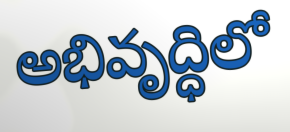
అభివృద్ధిలో